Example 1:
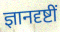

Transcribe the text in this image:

ज्ञानदृष्टीं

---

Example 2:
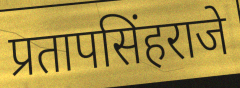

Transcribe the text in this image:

प्रतापसिंहराजे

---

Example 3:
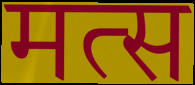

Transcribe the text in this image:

मत्स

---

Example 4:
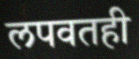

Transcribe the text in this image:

लपवतही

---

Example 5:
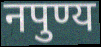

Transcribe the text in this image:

नपुण्य